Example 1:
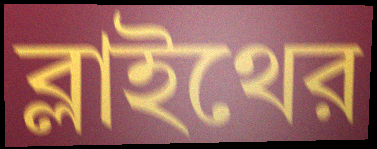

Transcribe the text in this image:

ব্লাইথের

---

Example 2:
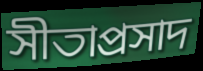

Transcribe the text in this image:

সীতাপ্রসাদ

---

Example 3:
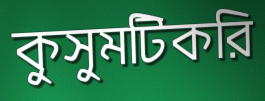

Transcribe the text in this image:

কুসুমটিকরি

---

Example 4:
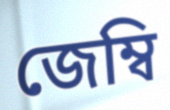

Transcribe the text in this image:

জেম্বি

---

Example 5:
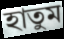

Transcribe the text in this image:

হাতুম